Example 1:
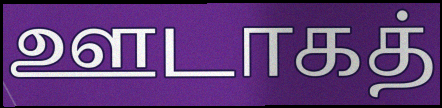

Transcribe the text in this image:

ஊடாகத்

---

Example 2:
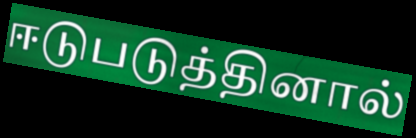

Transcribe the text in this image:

ஈடுபடுத்தினால்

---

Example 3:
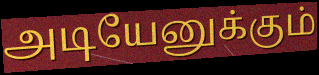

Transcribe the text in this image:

அடியேனுக்கும்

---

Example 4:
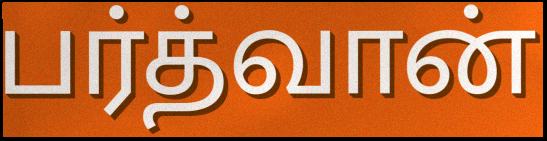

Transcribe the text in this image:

பர்த்வான்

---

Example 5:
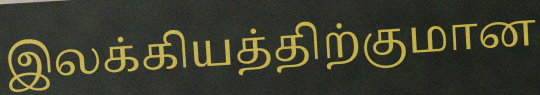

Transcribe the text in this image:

இலக்கியத்திற்குமான